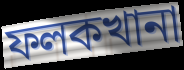
ফলকখানা